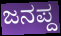
ಜನಪ್ದ